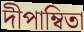
দীপাম্বিতা